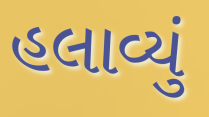
હલાવ્યું